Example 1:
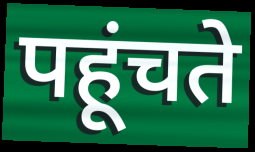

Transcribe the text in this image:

पहूंचते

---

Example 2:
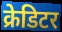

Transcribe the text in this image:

क्रेडिटर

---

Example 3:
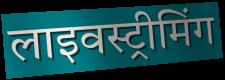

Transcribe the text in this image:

लाइवस्ट्रीमिंग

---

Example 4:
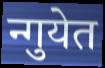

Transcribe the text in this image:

न्गुयेत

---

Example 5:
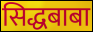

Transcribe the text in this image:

सिद्धबाबा